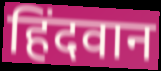
हिंदवान